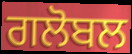
ਗਲੋਬਲ